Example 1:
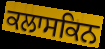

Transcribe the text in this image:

ਕਲਾਸਕਿਨ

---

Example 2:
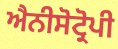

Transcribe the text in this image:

ਐਨੀਸੋਟ੍ਰੋਪੀ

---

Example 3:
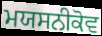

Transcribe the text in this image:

ਮਯਸਨੀਕੋਵ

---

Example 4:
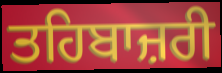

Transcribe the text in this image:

ਤਹਿਬਾਜ਼ਰੀ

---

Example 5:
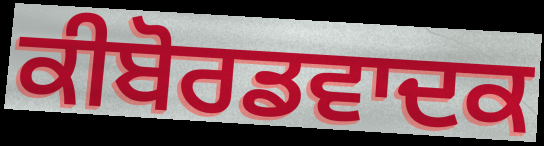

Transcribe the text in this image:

ਕੀਬੋਰਡਵਾਦਕ